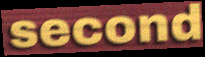
second